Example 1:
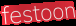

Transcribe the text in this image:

festoon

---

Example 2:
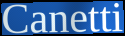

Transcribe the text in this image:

Canetti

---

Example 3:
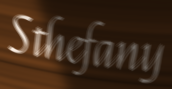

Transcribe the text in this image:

Sthefany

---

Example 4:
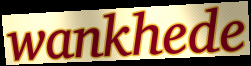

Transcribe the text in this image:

wankhede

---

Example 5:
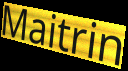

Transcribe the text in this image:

Maitrin